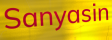
Sanyasin